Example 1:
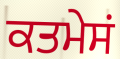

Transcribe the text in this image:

ਕਤਮੇਸਂ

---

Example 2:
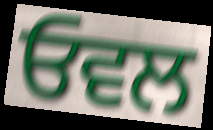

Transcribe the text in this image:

ਓਵਲ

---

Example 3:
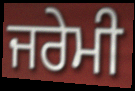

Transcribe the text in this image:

ਜਰੇਮੀ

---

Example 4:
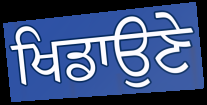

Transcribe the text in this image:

ਖਿਡਾਉਣੇ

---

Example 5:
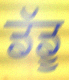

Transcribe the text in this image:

ਡੱਡੂ